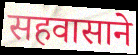
सहवासाने